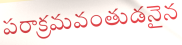
పరాక్రమవంతుడనైన